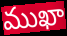
ముఖా